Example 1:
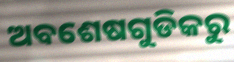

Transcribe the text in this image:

ଅବଶେଷଗୁଡିକରୁ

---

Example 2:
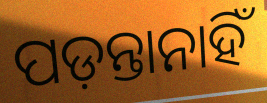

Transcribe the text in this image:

ପଡ଼ନ୍ତାନାହିଁ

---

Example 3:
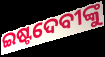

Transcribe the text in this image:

ଇଷ୍ଟଦେବୀଙ୍କୁ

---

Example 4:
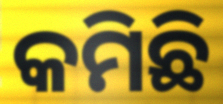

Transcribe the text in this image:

କମିଛି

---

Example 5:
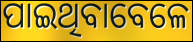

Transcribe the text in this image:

ପାଇଥିବାବେଳେ